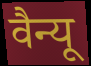
वैन्यू